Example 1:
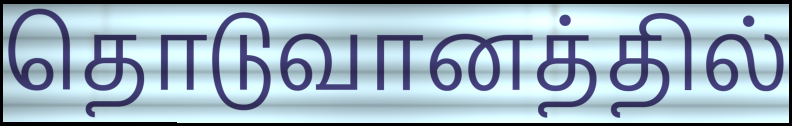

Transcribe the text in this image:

தொடுவானத்தில்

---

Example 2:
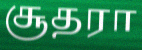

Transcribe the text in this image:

சூதரா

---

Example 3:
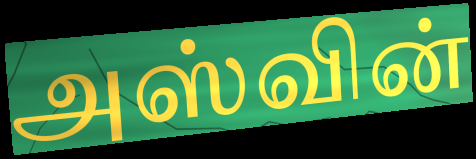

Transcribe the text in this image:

அஸ்வின்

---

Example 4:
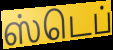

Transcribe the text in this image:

ஸ்டெப்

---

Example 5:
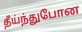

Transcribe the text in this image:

தீய்ந்துபோன